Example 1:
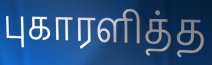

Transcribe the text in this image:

புகாரளித்த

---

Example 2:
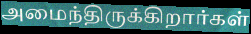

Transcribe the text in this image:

அமைந்திருக்கிறார்கள்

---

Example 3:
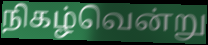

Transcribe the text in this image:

நிகழ்வென்று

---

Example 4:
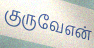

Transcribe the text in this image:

குருவேஎன்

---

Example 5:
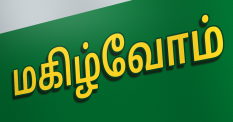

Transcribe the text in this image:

மகிழ்வோம்